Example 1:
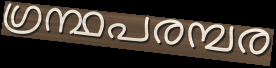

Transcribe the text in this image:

ഗ്രന്ഥപരമ്പര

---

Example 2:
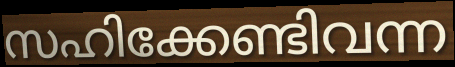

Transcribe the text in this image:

സഹിക്കേണ്ടിവന്ന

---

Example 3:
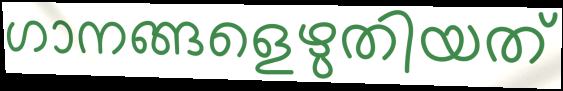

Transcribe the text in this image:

ഗാനങ്ങളെഴുതിയത്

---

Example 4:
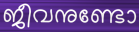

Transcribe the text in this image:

ജീവനുണ്ടോ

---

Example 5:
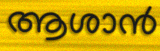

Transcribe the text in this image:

ആശാൻ